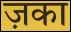
ज़का